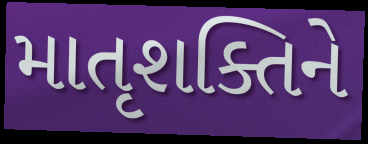
માતૃશક્તિને